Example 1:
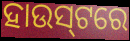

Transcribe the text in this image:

ହାଉସ୍‌ଟରେ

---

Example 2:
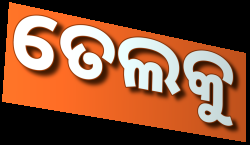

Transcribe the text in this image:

ତେଲକୁ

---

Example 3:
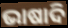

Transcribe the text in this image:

ଭାଷାଦି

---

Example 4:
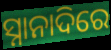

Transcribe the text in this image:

ସ୍ନାନାଦିରେ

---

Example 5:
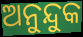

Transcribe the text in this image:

ଅନୁନ୍ଦୁକ